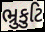
ભ્રુકુટિ